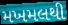
મખમલથી